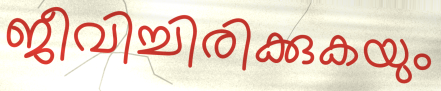
ജീവിച്ചിരിക്കുകയും